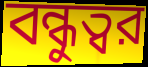
বন্ধুত্বর